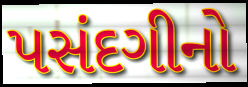
પસંદગીનો